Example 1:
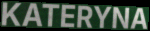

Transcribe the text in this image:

KATERYNA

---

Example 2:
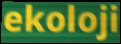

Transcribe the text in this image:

ekoloji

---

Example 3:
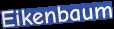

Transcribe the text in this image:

Eikenbaum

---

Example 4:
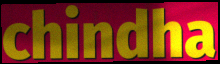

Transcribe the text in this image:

chindha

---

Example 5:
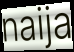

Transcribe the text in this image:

naija